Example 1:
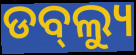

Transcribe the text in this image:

ଡବ୍‌ଲ୍ୟୁ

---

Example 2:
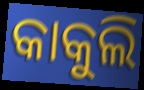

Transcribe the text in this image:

କାକୁଲି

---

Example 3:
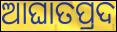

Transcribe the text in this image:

ଆଘାତପ୍ରଦ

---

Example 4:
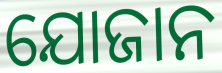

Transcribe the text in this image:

ଯୋଜାନ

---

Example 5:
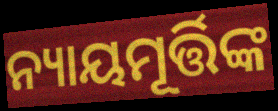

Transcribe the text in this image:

ନ୍ୟାୟମୂର୍ତ୍ତିଙ୍କ